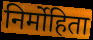
निर्मोहिता